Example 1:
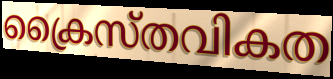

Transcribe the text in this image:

ക്രൈസ്തവികത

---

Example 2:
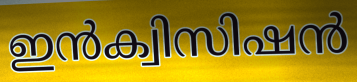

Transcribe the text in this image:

ഇൻക്വിസിഷൻ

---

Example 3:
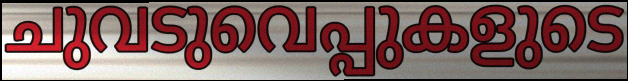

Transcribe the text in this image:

ചുവടുവെപ്പുകളുടെ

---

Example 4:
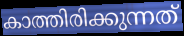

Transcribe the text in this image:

കാത്തിരിക്കുന്നത്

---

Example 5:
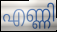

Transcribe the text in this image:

എണ്ണി